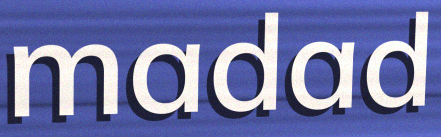
madad